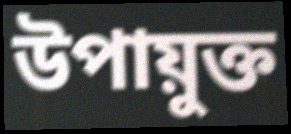
উপায়ুক্ত